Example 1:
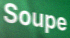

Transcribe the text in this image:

Soupe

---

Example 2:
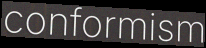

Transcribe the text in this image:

conformism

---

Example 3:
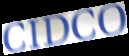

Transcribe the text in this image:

CIDCO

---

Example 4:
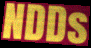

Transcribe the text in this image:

NDDs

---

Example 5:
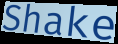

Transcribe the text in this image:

Shake